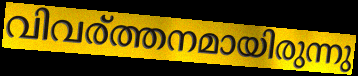
വിവര്ത്തനമായിരുന്നു